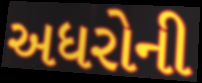
અધરોની